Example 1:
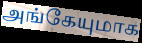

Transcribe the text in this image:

அங்கேயுமாக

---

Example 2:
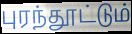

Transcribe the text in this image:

புரந்தூட்டும்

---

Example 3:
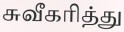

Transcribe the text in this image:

சுவீகரித்து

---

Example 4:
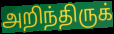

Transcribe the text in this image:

அறிந்திருக்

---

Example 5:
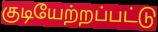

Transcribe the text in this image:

குடியேற்றப்பட்டு